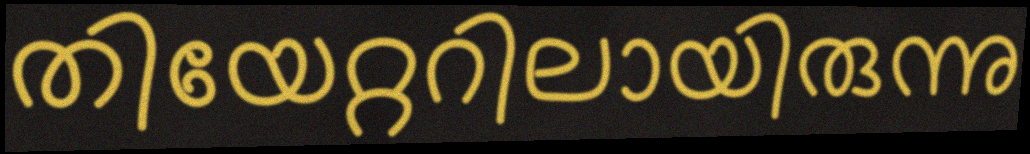
തിയേറ്ററിലായിരുന്നു